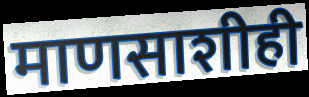
माणसाशीही